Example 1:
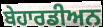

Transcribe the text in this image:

ਬੇਹਾਰਡੀਅਨ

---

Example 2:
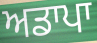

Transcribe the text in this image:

ਅਡਾਪਾ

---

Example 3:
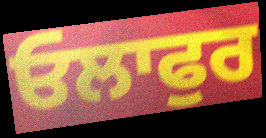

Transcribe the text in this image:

ਓਲਾਫੁਰ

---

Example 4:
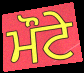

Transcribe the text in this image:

ਮੌਟੇ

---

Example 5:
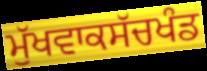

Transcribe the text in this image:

ਮੁੱਖਵਾਕਸੱਚਖੰਡ